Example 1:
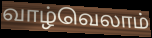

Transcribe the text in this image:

வாழ்வெலாம்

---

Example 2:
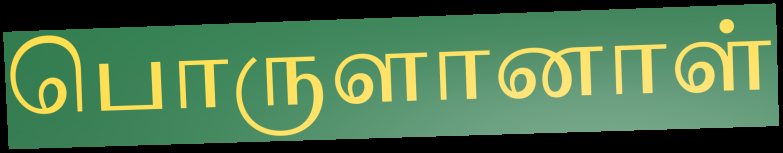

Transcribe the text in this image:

பொருளானாள்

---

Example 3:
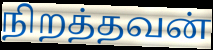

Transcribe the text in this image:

நிறத்தவன்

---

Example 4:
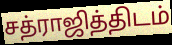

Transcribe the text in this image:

சத்ராஜித்திடம்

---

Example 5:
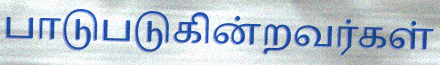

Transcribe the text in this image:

பாடுபடுகின்றவர்கள்